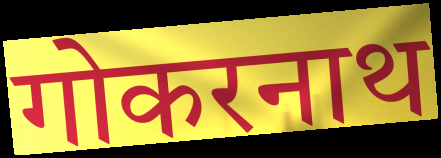
गोकरनाथ